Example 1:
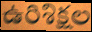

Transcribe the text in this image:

ఉరిశిక్షల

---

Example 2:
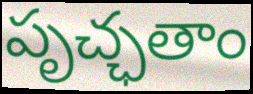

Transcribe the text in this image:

పృచ్ఛతాం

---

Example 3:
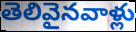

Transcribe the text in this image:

తెలివైనవాళ్లు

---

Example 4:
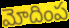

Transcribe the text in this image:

మోదింప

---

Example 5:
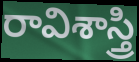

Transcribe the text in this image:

రావిశాస్త్రి